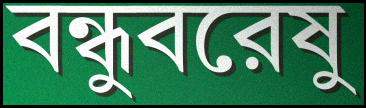
বন্ধুবরেষু